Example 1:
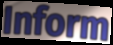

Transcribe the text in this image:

Inform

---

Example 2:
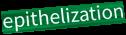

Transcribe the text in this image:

epithelization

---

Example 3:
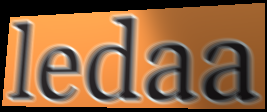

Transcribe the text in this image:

ledaa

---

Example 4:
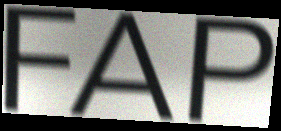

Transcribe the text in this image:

FAP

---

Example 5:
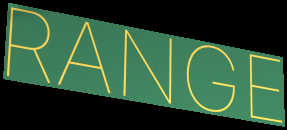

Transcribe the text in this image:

RANGE